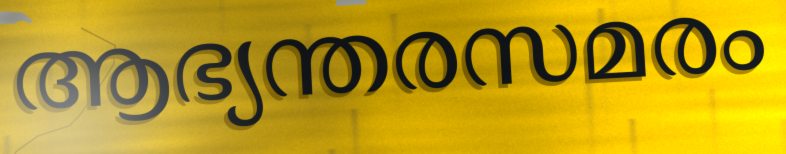
ആഭ്യന്തരസമരം